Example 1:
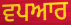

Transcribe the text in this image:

ਵਪਆਰ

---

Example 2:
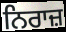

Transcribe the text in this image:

ਨਿਰਾਜ਼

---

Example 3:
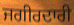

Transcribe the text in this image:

ਜਗੀਰਦਾਰੀ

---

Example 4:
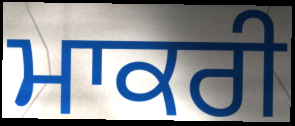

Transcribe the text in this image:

ਮਾਕਰੀ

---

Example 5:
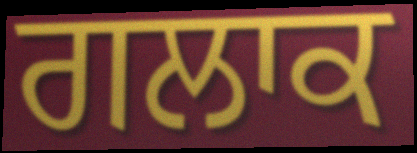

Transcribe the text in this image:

ਗਲਾਕ